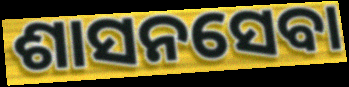
ଶାସନସେବା